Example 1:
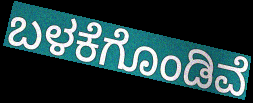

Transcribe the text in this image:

ಬಳಕೆಗೊಂಡಿವೆ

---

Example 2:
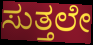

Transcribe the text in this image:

ಸುತ್ತಲೇ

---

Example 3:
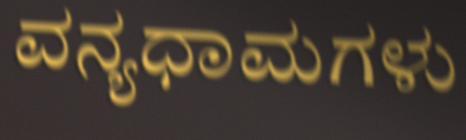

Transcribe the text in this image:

ವನ್ಯಧಾಮಗಳು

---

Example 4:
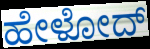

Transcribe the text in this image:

ಹೇಳೋದ್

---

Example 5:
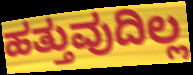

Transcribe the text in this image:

ಹತ್ತುವುದಿಲ್ಲ